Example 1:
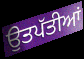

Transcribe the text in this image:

ਉਤਪੱਤੀਆਂ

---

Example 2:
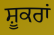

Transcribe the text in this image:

ਸ਼ੂਕਰਾਂ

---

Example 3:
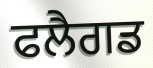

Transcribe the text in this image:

ਫਲੈਗਡ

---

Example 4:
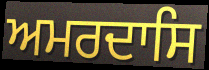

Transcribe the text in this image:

ਅਮਰਦਾਸਿ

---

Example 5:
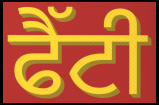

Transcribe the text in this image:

ਫੈੱਟੀ